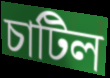
চাটিল